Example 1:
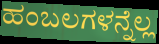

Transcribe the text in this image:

ಹಂಬಲಗಳನ್ನೆಲ್ಲ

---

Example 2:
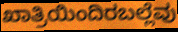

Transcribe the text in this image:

ಖಾತ್ರಿಯಿಂದಿರಬಲ್ಲೆವು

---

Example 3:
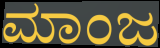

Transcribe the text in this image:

ಮಾಂಜ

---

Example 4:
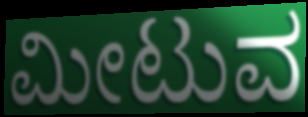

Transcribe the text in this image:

ಮೀಟುವ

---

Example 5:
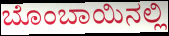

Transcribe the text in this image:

ಬೊಂಬಾಯಿನಲ್ಲಿ